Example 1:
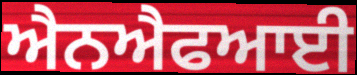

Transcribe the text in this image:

ਐਨਐਫਆਈ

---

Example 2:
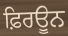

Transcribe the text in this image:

ਫ਼ਿਰਊਨ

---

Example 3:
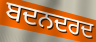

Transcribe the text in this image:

ਬਦਨਦਰਦ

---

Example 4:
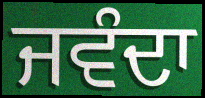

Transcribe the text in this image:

ਜਵੰਦਾ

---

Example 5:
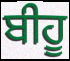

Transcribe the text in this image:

ਬੀਹੂ